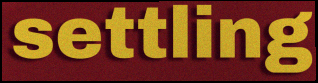
settling